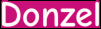
Donzel